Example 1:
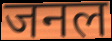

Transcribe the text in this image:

जनल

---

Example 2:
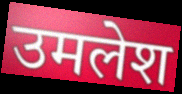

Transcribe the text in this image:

उमलेश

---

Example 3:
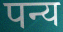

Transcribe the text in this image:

पन्य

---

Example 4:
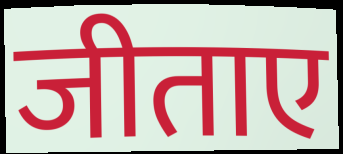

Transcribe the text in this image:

जीताए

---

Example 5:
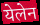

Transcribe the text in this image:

येलेन